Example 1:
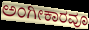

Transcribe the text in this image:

ಅಂಗೀಕಾರವೂ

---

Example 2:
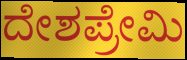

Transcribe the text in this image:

ದೇಶಪ್ರೇಮಿ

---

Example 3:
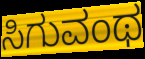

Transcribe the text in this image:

ಸಿಗುವಂಥ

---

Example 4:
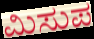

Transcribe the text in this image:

ಮಿಸುಪ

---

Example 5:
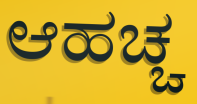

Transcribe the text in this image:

ಆಹಚ್ಚ